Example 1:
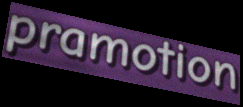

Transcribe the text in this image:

pramotion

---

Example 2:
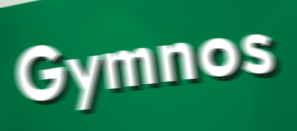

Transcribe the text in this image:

Gymnos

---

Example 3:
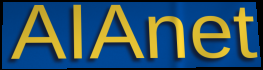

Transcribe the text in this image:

AIAnet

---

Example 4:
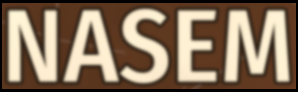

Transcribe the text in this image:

NASEM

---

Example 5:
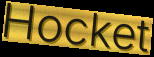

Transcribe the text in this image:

Hocket